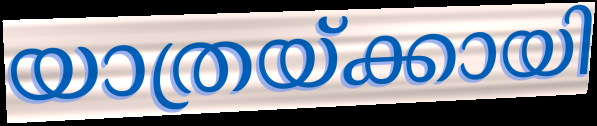
യാത്രയ്ക്കായി